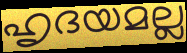
ഹൃദയമല്ല